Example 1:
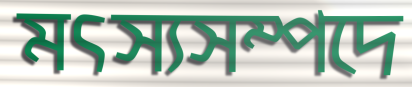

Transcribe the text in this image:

মৎস্যসম্পদে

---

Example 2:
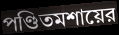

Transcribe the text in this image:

পণ্ডিতমশায়ের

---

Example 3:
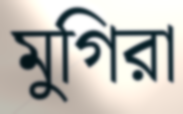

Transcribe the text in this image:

মুগিরা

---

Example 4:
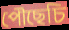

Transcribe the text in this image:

পৌছেচি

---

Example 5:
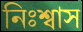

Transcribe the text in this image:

নিঃশ্বাস